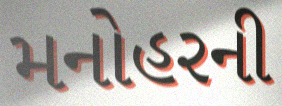
મનોહરની